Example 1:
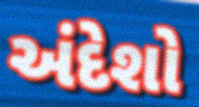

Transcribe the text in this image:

અંદેશો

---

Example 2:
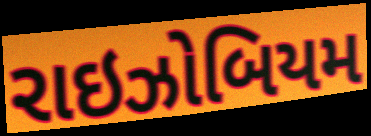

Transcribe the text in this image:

રાઇઝોબિયમ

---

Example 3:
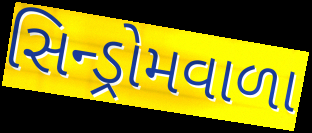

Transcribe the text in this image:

સિન્ડ્રોમવાળા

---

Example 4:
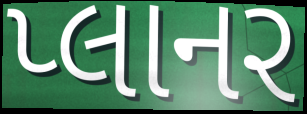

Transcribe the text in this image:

પ્લાનર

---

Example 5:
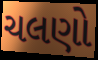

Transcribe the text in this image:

ચલણો